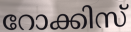
റോക്കിസ്